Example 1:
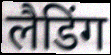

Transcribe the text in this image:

लैडिंग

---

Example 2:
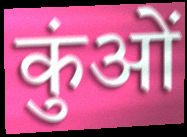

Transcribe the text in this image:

कुंओं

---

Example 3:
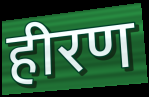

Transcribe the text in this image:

हीरण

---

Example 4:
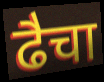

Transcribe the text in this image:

ढैचा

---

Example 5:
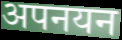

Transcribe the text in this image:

अपनयन